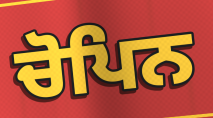
ਚੋਪਿਨ